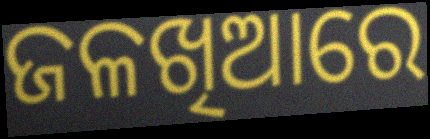
ଜଳଖିଆରେ